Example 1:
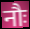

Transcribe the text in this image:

नौः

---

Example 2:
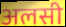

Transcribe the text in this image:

अलसी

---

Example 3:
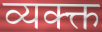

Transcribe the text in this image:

व्यक्क्त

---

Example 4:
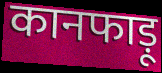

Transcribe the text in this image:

कानफाड़ू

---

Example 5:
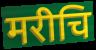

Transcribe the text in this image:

मरीचि